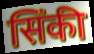
सिंकी